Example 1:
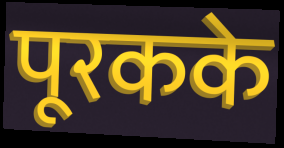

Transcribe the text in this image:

पूरकके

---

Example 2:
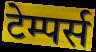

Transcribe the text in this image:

टेम्पर्स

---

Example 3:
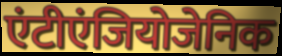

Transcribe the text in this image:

एंटीएंजियोजेनिक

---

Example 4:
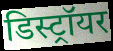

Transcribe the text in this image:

डिस्‍ट्रॉयर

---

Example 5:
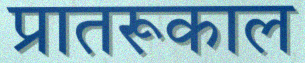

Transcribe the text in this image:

प्रातरूकाल